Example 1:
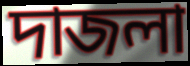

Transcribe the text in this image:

দাজলা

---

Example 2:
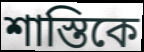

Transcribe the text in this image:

শাস্তিকে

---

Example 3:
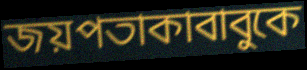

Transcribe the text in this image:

জয়পতাকাবাবুকে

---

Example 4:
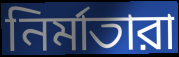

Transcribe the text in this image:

নির্মাতারা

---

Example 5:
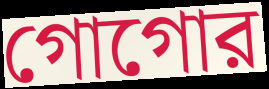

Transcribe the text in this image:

গোগোর